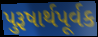
પુરૂષાર્થપૂર્વક